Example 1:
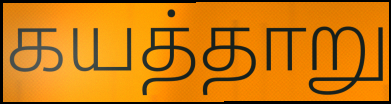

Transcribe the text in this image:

கயத்தாறு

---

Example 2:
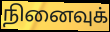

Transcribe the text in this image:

நினைவுக்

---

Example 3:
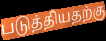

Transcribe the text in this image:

படுத்தியதற்கு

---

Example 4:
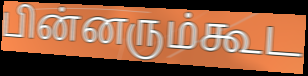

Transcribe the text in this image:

பின்னரும்கூட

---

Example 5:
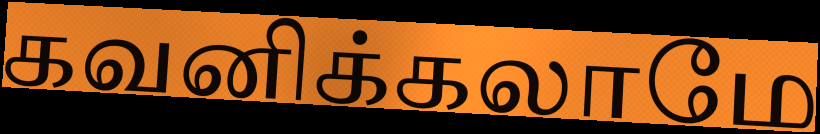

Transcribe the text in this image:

கவனிக்கலாமே